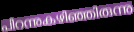
പിറന്നുകഴിഞ്ഞിരുന്നു